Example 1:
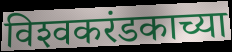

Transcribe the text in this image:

विश्‍वकरंडकाच्या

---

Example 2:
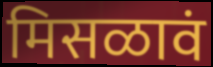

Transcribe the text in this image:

मिसळावं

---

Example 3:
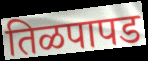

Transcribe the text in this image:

तिळपापड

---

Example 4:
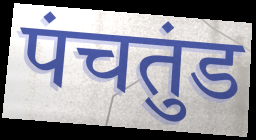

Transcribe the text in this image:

पंचतुंड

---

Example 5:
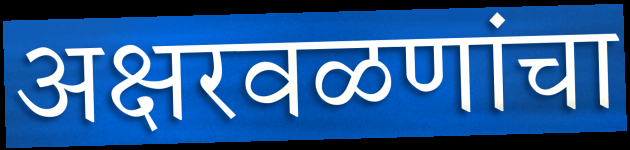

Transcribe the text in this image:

अक्षरवळणांचा